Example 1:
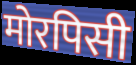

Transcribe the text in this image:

मोरपिसी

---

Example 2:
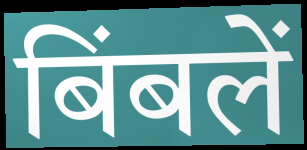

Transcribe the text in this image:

बिंबलें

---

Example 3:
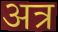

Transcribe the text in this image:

अत्र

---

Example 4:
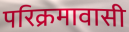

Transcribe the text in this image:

परिक्रमावासी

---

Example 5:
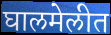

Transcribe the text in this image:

घालमेलीत